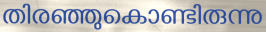
തിരഞ്ഞുകൊണ്ടിരുന്നു